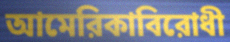
আমেরিকাবিরোধী